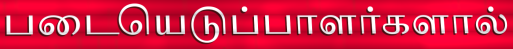
படையெடுப்பாளர்களால்